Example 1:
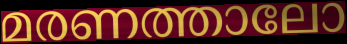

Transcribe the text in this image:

മരണത്താലോ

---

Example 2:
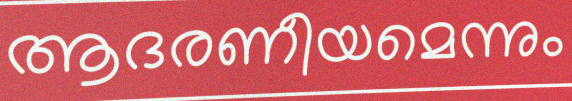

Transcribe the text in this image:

ആദരണീയമെന്നും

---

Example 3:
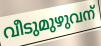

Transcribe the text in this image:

വീടുമുഴുവന്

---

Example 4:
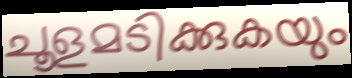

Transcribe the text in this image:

ചൂളമടിക്കുകയും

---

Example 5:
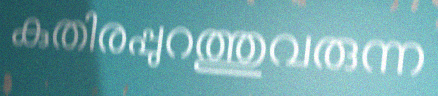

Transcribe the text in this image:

കുതിരപ്പുറത്തുവരുന്ന